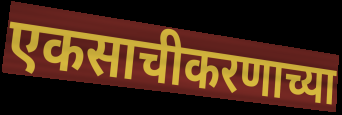
एकसाचीकरणाच्या